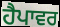
ਹੈਪਾਵਰ